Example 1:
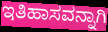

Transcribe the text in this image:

ಇತಿಹಾಸವನ್ನಾಗಿ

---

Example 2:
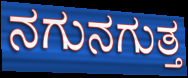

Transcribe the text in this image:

ನಗುನಗುತ್ತ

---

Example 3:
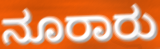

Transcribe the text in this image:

ನೂರಾರು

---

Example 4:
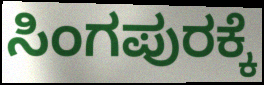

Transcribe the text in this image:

ಸಿಂಗಪುರಕ್ಕೆ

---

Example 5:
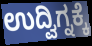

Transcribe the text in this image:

ಉದ್ವಿಗ್ನಕ್ಕೆ